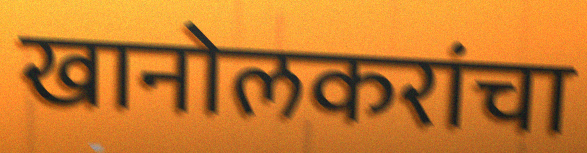
खानोलकरांचा